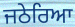
ਜਠੇਰਿਆ